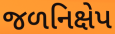
જળનિક્ષેપ